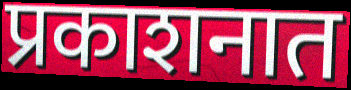
प्रकाशनात